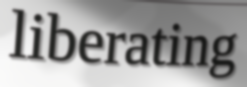
liberating